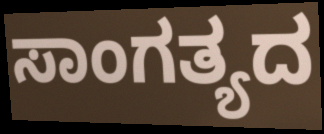
ಸಾಂಗತ್ಯದ